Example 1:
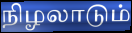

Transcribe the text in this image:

நிழலாடும்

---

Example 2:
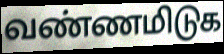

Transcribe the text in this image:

வண்ணமிடுக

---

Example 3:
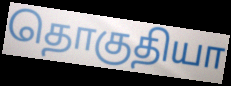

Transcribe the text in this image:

தொகுதியா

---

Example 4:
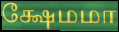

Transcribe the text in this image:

க்ஷேமமா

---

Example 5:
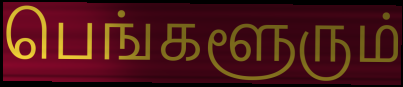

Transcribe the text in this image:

பெங்களூரும்